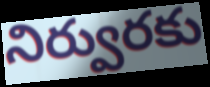
నిర్వురకు